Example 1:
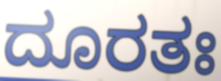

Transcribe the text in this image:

ದೂರತಃ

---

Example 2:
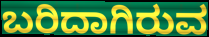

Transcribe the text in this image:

ಬರಿದಾಗಿರುವ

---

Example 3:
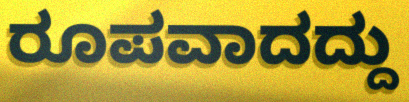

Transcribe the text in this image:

ರೂಪವಾದದ್ದು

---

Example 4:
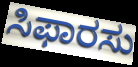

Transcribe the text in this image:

ಸಿಫಾರಸು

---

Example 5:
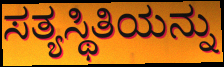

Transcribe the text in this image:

ಸತ್ಯಸ್ಥಿತಿಯನ್ನು